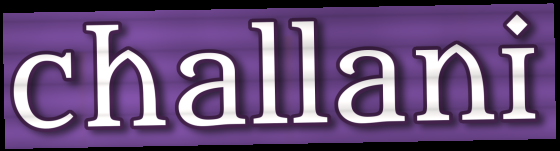
challani